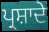
ਪ੍ਰਸ਼ਾਦੇ